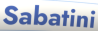
Sabatini